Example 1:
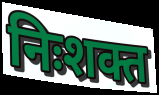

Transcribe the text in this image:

निःशक्त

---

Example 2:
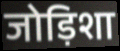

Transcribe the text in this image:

जोड़िशा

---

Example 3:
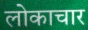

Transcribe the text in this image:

लोकाचार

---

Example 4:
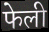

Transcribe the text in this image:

फेली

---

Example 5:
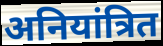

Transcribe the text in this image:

अनियांत्रित